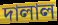
দালাল